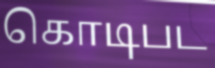
கொடிபட